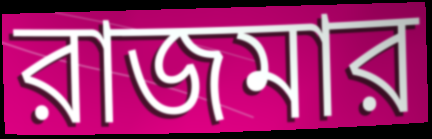
রাজমার